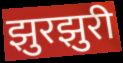
झुरझुरी